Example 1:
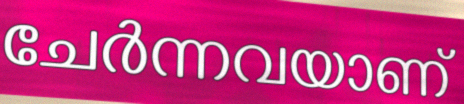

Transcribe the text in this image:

ചേർന്നവയാണ്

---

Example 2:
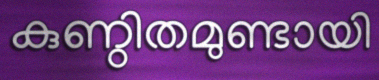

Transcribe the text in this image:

കുണ്ഠിതമുണ്ടായി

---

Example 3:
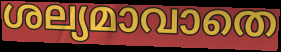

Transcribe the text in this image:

ശല്യമാവാതെ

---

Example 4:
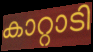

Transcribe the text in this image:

കാറ്റാടി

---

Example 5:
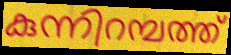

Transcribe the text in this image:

കുന്നിറമ്പത്ത്